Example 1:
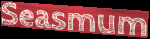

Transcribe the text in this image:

Seasmum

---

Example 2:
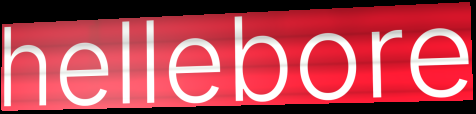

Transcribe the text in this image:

hellebore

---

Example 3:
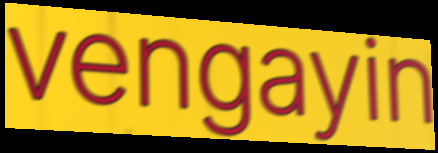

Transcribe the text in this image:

vengayin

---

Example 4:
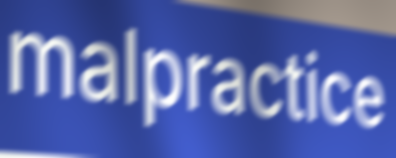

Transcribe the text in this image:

malpractice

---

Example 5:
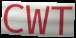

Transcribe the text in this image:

CWT